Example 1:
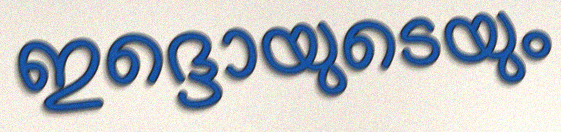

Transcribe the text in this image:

ഇദ്ദൊയുടെയും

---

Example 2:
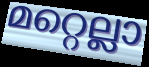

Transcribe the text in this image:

മറ്റെല്ലാ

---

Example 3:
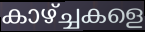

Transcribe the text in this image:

കാഴ്ച്ചകളെ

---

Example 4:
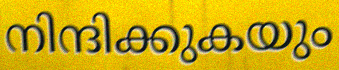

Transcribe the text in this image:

നിന്ദിക്കുകയും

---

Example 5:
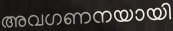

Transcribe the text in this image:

അവഗണനയായി